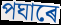
পঘাৰে